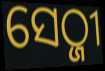
ସେଠ୍ଜୀ